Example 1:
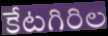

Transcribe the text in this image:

కేటగిరిల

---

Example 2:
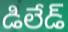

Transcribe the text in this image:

డిలేడ్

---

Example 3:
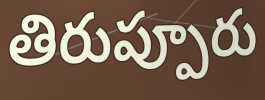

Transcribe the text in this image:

తిరుప్పూరు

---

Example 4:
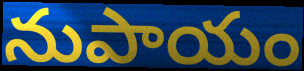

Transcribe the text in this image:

నుపాయం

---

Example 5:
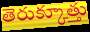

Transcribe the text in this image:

తెరుక్కూత్తు